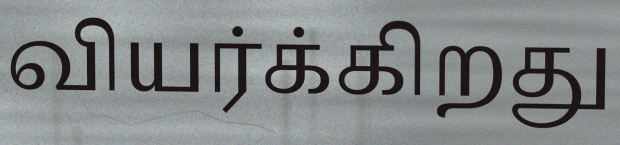
வியர்க்கிறது